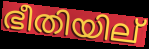
ഭീതിയില്